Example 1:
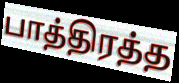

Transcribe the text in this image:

பாத்திரத்த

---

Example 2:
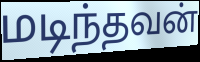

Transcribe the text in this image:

மடிந்தவன்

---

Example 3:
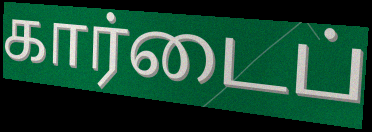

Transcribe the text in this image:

கார்டைப்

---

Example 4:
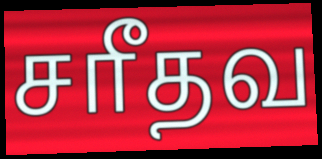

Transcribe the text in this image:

சரீதவ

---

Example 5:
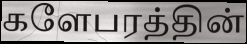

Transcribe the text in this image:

களேபரத்தின்